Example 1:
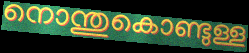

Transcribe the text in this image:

നൊന്തുകൊണ്ടുള്ള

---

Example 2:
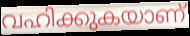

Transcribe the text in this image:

വഹിക്കുകയാണ്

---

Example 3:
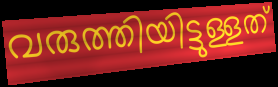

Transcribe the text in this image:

വരുത്തിയിട്ടുള്ളത്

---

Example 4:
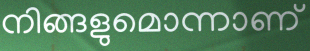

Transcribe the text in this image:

നിങ്ങളുമൊന്നാണ്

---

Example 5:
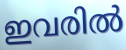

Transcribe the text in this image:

ഇവരിൽ